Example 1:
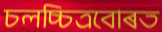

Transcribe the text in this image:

চলচ্চিত্ৰবোৰত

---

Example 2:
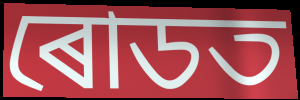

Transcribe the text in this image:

ৰোডত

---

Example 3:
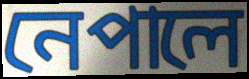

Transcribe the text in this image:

নেপালে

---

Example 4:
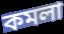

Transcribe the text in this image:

কমলা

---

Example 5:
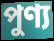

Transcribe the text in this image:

পুণ্য